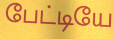
பேட்டியே